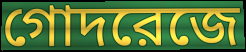
গোদরেজে